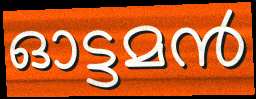
ഓട്ടമൻ